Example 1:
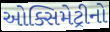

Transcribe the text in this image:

ઓક્સિમેટ્રીનો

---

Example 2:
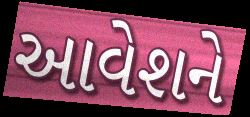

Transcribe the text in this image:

આવેશને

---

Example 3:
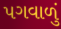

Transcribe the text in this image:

પગવાળું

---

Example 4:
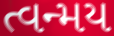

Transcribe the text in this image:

ત્વન્મય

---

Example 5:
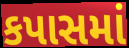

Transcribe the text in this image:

કપાસમાં